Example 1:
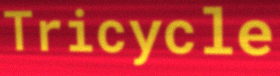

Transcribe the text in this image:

Tricycle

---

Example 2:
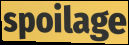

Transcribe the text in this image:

spoilage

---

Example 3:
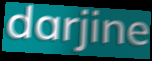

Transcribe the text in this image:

darjine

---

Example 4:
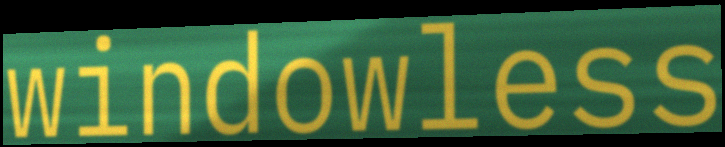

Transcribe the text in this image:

windowless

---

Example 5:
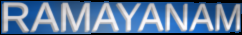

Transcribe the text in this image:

RAMAYANAM